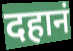
दहानं